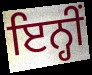
ਇਨ੍ਹੀਂ